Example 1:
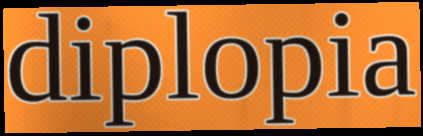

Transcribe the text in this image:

diplopia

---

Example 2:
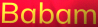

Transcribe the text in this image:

Babam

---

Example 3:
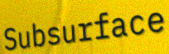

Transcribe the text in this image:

Subsurface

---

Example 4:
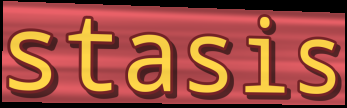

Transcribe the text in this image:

stasis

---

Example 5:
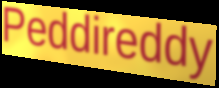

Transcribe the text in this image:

Peddireddy